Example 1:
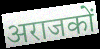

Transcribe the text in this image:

अराजकों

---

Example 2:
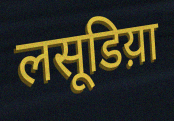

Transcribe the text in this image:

लसूडिय़ा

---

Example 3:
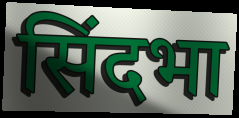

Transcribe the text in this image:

सिंदभा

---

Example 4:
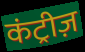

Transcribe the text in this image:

कंट्रीज़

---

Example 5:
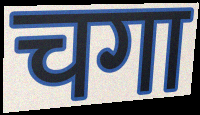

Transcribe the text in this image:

चगा